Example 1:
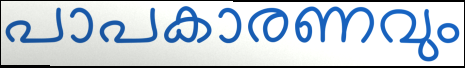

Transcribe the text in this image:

പാപകാരണവും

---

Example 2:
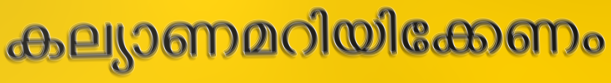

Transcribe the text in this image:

കല്യാണമറിയിക്കേണം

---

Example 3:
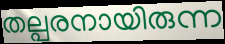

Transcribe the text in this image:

തല്പരനായിരുന്ന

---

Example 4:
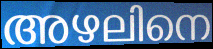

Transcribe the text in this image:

അഴലിനെ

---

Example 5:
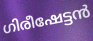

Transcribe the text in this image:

ഗിരീഷേട്ടൻ